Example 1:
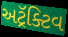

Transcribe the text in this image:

અટ્રૅક્ટિવ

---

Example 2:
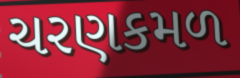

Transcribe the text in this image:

ચરણકમળ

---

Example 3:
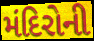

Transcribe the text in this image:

મંદિરોની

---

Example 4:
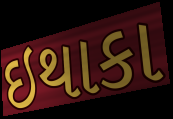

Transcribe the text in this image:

ઇથાકા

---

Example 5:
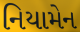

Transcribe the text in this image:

નિયામેન